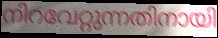
നിറവേറ്റുന്നതിനായി